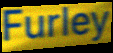
Furley